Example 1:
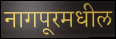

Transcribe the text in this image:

नागपूरमधील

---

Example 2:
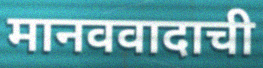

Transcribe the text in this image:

मानववादाची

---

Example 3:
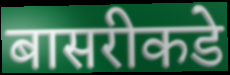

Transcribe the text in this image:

बासरीकडे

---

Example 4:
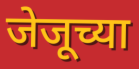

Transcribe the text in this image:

जेजूच्या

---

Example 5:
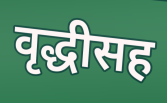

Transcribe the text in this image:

वृद्धीसह